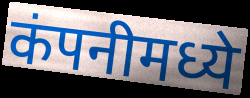
कंपनीमध्ये